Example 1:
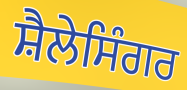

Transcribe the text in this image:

ਸ਼ੈਲੇਸਿੰਗਰ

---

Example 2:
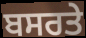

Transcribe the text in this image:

ਬਸਰਤੇ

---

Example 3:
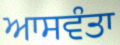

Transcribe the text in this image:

ਆਸਵੰਤਾ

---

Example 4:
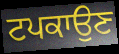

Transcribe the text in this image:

ਟਪਕਾਉਣ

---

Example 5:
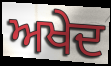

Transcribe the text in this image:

ਅਖੇਦ